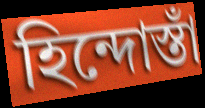
হিন্দোস্তাঁ